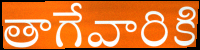
తాగేవారికి